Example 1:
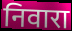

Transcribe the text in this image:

निवारा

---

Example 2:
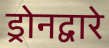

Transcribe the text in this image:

ड्रोनद्वारे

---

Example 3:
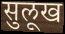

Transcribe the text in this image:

सुलूख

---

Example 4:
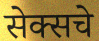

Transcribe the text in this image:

सेक्सचे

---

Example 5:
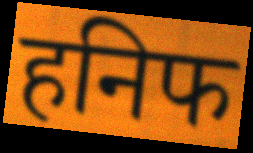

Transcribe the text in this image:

हनिफ